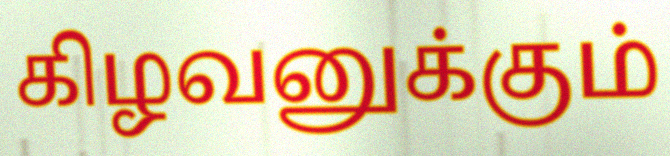
கிழவனுக்கும்